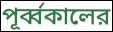
পূর্ব্বকালের